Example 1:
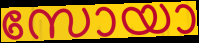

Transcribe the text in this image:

സോയാ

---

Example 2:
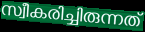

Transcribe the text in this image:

സ്വീകരിച്ചിരുന്നത്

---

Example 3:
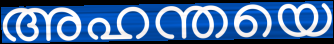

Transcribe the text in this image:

അഹന്തയെ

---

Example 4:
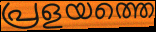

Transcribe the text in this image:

പ്രളയത്തെ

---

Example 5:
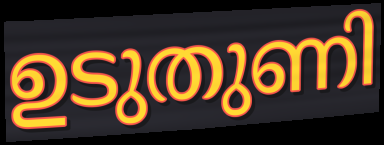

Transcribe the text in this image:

ഉടുതുണി